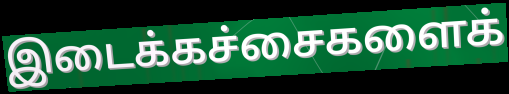
இடைக்கச்சைகளைக்